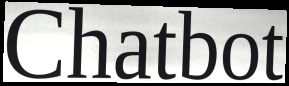
Chatbot